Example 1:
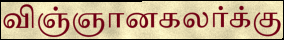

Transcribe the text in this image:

விஞ்ஞானகலர்க்கு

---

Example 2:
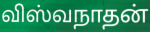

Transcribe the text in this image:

விஸ்வநாதன்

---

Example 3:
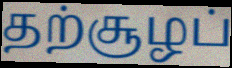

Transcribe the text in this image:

தற்சூழப்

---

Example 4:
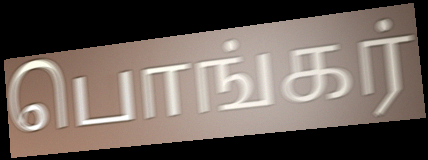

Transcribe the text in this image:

பொங்கர்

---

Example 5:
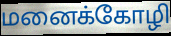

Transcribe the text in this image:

மனைக்கோழி